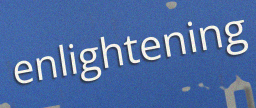
enlightening